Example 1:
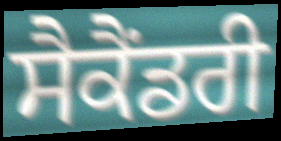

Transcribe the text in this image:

ਸੈਕੈਂਡਰੀ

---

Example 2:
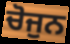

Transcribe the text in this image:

ਚੋਜੁਨ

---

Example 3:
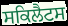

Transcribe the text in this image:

ਸਕਿਲੈਟਸ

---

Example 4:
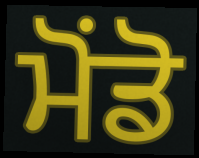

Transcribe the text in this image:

ਮੋਂਡੋ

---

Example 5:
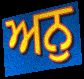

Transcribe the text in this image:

ਅਨੁ